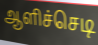
ஆளிச்செடி